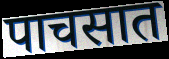
पाचसात